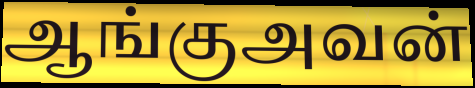
ஆங்குஅவன்